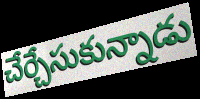
చేర్చేసుకున్నాడు